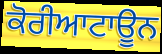
ਕੋਰੀਆਟਾਊਨ